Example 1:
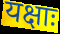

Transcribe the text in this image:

यक्षाः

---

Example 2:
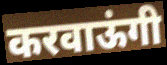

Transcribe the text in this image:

करवाऊंगी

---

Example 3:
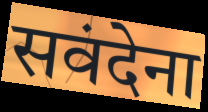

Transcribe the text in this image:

सवंदेना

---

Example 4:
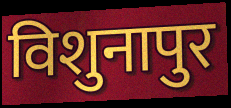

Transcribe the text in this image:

विशुनापुर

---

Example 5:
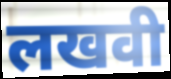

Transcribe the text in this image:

लखवी